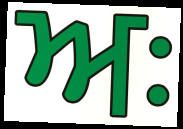
ਅਃ